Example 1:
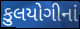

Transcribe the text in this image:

કુલયોગીનાં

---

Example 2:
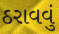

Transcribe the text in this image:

ઠરાવવું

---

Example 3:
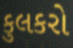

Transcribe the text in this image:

કુલકરો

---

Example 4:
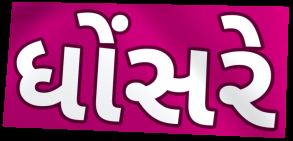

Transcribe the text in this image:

ધોંસરે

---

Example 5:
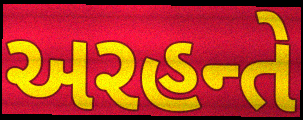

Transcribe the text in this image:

અરહન્તે